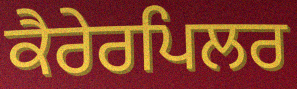
ਕੈਰੇਰਪਿਲਰ